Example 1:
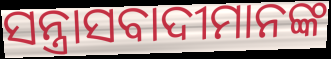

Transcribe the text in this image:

ସନ୍ତ୍ରାସବାଦୀମାନଙ୍କ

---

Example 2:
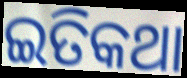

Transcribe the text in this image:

ଇତିକଥା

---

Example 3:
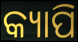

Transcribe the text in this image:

କ୍ୟାପି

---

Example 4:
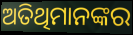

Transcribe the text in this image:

ଅତିଥିମାନଙ୍କର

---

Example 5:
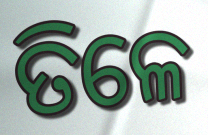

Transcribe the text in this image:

ତିଳେ